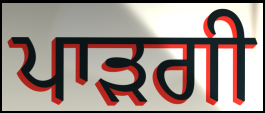
ਪਾੜਗੀ